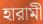
হারামী